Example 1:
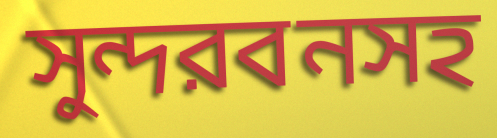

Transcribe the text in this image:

সুন্দরবনসহ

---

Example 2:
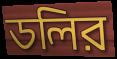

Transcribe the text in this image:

ডলির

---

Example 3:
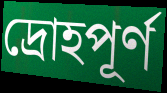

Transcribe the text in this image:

দ্রোহপূর্ণ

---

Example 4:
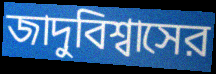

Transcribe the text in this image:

জাদুবিশ্বাসের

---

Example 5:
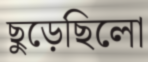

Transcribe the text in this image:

ছুড়েছিলো